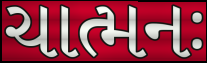
ચાત્મનઃ